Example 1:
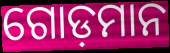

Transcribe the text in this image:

ଗୋଡ଼ମାନ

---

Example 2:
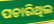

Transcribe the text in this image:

ପଚାରିଥିଲ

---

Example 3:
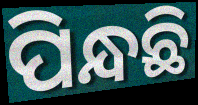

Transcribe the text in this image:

ପିନ୍ଧଛି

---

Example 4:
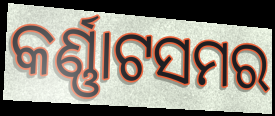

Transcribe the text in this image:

କର୍ଣ୍ଣାଟସମର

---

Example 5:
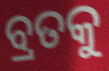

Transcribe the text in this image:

ବ୍ରତକୁ